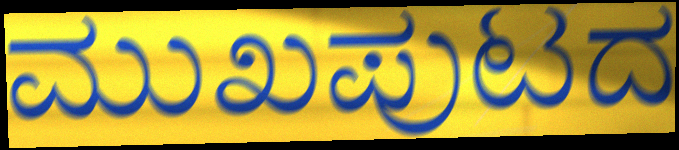
ಮುಖಪುಟದ